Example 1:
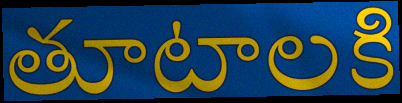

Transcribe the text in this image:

తూటాలకి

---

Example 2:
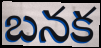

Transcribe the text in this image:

బనక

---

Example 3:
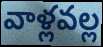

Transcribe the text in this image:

వాళ్లవల్ల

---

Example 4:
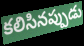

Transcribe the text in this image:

కలిసినప్పుడు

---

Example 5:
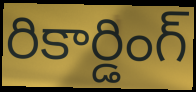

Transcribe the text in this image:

రికార్డింగ్